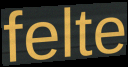
felte